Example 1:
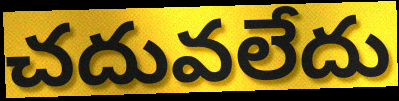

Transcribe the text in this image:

చదువలేదు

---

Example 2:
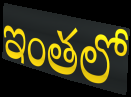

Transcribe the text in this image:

ఇంతలో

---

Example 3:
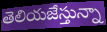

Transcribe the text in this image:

తెలియజేస్తున్నా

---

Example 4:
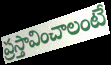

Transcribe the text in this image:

ప్రస్తావించాలంటే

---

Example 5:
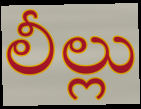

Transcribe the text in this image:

లీల్లు